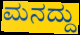
ಮನದ್ದು